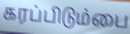
கரப்பிடும்பை